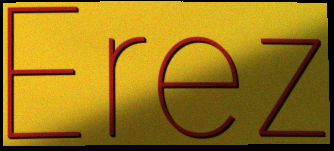
Erez